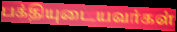
பக்தியுடையவர்கள்